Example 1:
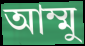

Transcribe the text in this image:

আম্মু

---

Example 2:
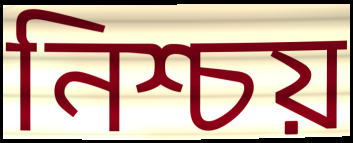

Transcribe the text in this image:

নিশ্চয়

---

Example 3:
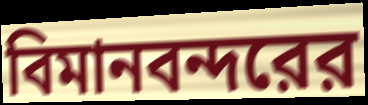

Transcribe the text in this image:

বিমানবন্দরের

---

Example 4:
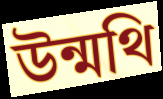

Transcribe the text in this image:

উন্মথি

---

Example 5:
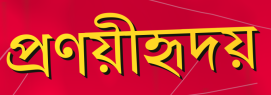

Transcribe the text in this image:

প্রণয়ীহৃদয়